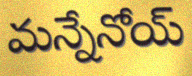
మన్నేనోయ్